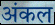
अंकल